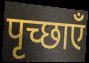
पृच्छाएँ